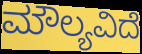
ಮೌಲ್ಯವಿದೆ